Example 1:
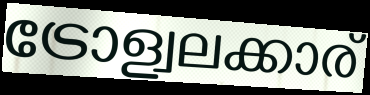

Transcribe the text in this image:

ട്രോള്വലക്കാര്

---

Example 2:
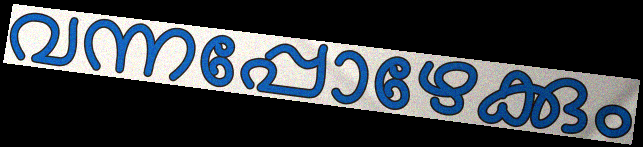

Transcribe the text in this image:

വന്നപ്പോഴേക്കും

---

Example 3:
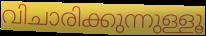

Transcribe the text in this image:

വിചാരിക്കുന്നുള്ളൂ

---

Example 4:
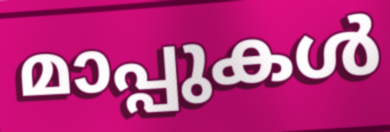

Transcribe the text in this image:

മാപ്പുകൾ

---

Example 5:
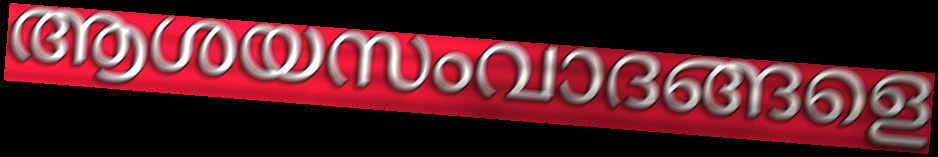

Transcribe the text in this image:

ആശയസംവാദങ്ങളെ